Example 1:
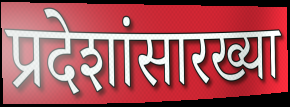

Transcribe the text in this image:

प्रदेशांसारख्या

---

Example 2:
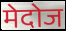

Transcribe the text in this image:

मेदोज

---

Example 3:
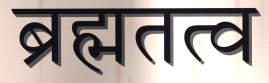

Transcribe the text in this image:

ब्रह्मतत्व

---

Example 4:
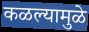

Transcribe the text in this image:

कळल्यामुळे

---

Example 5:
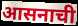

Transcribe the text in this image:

आसनाची